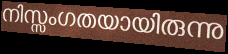
നിസ്സംഗതയായിരുന്നു